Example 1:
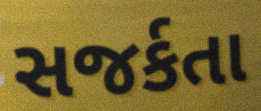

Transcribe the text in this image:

સજર્કતા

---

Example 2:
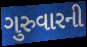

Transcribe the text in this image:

ગુરુવારની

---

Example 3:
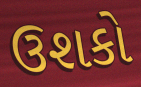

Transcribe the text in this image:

ઉશકો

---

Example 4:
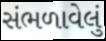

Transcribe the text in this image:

સંભળાવેલું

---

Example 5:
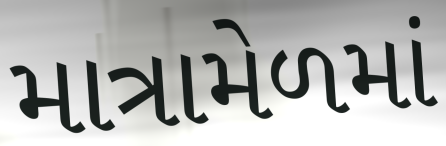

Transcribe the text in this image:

માત્રામેળમાં